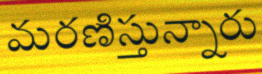
మరణిస్తున్నారు